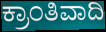
ಕ್ರಾಂತಿವಾದಿ